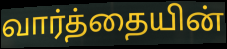
வார்த்தையின்